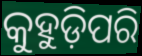
କୁହୁଡ଼ିପରି